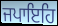
ਜਪਾਇਹਿ